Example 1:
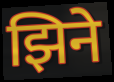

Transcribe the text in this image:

झिने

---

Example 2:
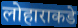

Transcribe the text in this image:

लोहाराकडे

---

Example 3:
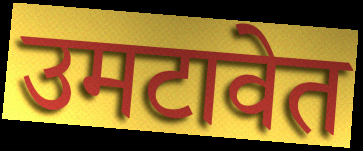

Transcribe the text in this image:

उमटावेत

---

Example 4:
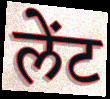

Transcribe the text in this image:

लेंट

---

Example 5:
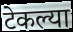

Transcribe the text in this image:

टेकल्या